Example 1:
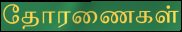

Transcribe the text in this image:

தோரணைகள்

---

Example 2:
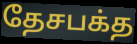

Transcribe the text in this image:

தேசபக்த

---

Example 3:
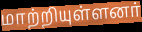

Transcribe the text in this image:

மாற்றியுள்ளனர்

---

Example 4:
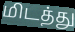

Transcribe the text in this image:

மிடத்து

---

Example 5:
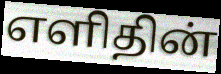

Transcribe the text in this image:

எளிதின்